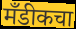
मँडीकचा